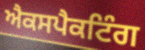
ਐਕਸਪੈਕਟਿੰਗ